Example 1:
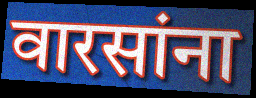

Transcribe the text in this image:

वारसांना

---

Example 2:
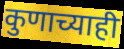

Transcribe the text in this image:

कुणाच्याही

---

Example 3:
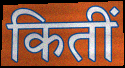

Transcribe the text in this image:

कितीं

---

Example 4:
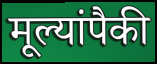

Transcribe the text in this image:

मूल्यांपैकी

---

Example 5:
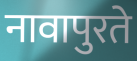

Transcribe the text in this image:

नावापुरते